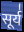
सूर्य॑